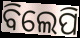
ବିଲେପି